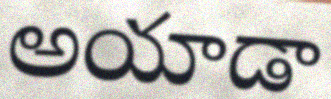
అయాడా